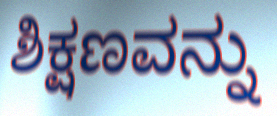
ಶಿಕ್ಷಣವನ್ನು